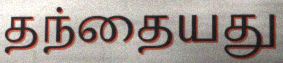
தந்தையது